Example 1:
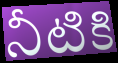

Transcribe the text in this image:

నీటికి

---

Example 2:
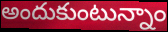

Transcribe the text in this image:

అందుకుంటున్నాం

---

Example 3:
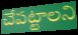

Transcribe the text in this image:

చేపట్టాలని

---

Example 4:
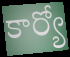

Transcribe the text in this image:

కార్యో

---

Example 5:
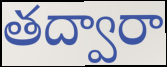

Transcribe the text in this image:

తద్వారా